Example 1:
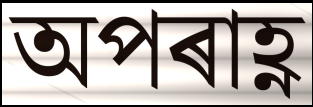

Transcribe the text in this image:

অপৰাহ্ণ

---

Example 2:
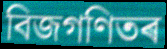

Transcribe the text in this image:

বিজগণিতৰ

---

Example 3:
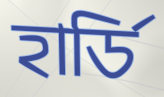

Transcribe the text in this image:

হাৰ্ডি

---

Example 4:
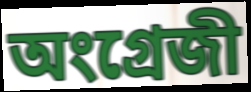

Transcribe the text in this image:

অংগ্ৰেজী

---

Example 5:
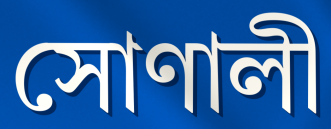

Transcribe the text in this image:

সোণালী